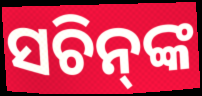
ସଚିନ୍‌ଙ୍କ